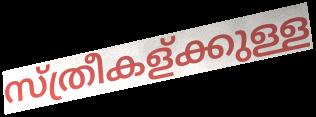
സ്ത്രീകള്ക്കുള്ള